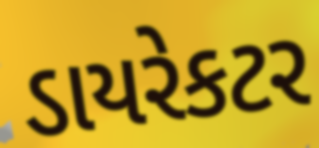
ડાયરેકટર